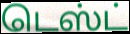
டெஸ்ட்